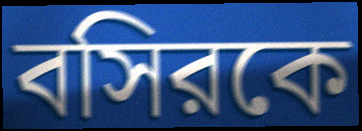
বসিরকে